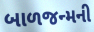
બાળજન્મની